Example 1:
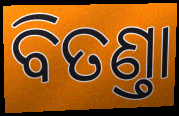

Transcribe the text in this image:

ବିତଣ୍ତା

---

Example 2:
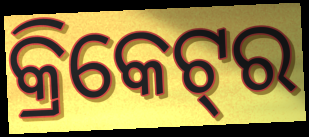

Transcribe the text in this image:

କ୍ରିକେଟ୍‌ର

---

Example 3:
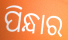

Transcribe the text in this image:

ପିନ୍ଧାର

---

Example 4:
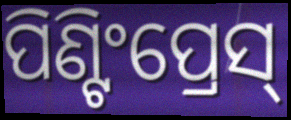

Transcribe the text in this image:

ପିଣ୍ଟିଂପ୍ରେସ୍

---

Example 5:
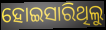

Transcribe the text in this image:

ହୋଇସାରିଥିଲୁ